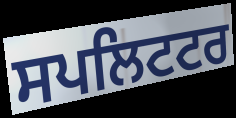
ਸਪਲਿਟਟਰ